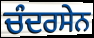
ਚੰਦਰਸੇਨ